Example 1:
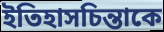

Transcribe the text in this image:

ইতিহাসচিন্তাকে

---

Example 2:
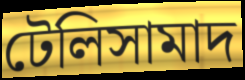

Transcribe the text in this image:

টেলিসামাদ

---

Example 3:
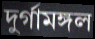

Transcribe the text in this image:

দুর্গামঙ্গল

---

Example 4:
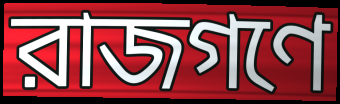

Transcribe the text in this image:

রাজগণে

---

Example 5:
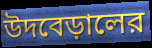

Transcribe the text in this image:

উদবেড়ালের